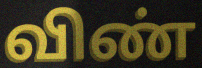
விண்